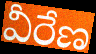
వీరేణ